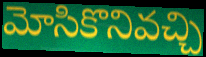
మోసికొనివచ్చి